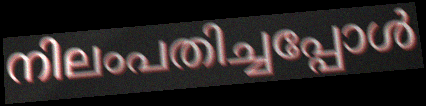
നിലംപതിച്ചപ്പോൾ